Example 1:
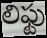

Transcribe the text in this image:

లిఫ్టు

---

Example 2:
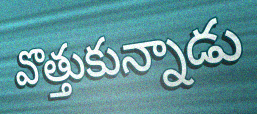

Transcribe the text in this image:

వొత్తుకున్నాడు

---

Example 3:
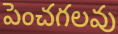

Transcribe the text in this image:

పెంచగలవు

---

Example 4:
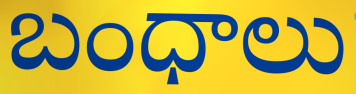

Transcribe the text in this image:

బంధాలు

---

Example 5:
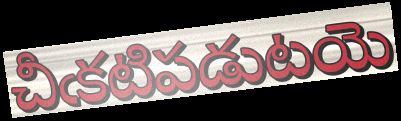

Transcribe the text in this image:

చీఁకటిపడుటయె